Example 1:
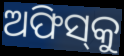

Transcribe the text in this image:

ଅଫିସ୍‌କୁ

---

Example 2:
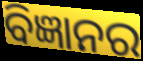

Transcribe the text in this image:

ବିଜ୍ଞାନର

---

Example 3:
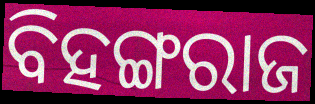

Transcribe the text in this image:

ବିହଙ୍ଗରାଜ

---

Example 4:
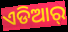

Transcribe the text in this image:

ଏଡିଆର୍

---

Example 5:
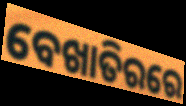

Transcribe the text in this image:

ବେଖାତିରରେ